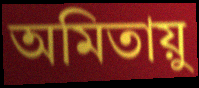
অমিতায়ু